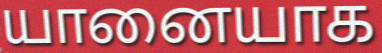
யானையாக